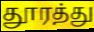
தூரத்து